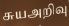
சுயஅறிவு